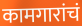
कामगारांचं